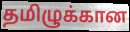
தமிழுக்கான